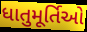
ધાતુમૂર્તિઓ